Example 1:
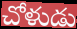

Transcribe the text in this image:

చోళుడు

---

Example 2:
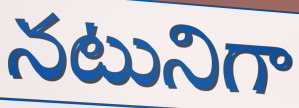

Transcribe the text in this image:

నటునిగా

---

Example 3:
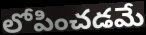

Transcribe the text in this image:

లోపించడమే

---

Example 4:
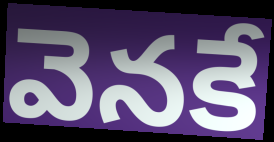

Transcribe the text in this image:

వెనకే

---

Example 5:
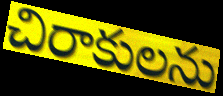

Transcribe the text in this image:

చిరాకులను